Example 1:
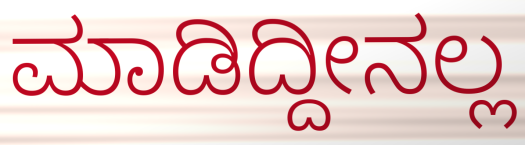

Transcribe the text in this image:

ಮಾಡಿದ್ದೀನಲ್ಲ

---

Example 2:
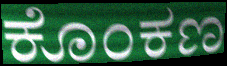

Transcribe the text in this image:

ಕೊಂಕಣ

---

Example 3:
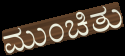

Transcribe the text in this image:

ಮುಂಚಿತು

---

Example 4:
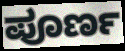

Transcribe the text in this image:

ಪೂರ್ಣ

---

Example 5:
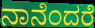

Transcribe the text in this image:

ನಾನೆಂದರೆ